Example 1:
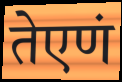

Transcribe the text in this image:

तेएणं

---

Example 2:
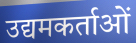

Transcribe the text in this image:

उद्यमकर्ताओं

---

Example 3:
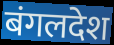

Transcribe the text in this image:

बंगलदेश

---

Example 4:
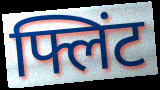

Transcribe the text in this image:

फ्लिंट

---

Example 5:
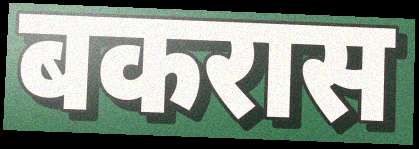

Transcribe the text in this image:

बकरास